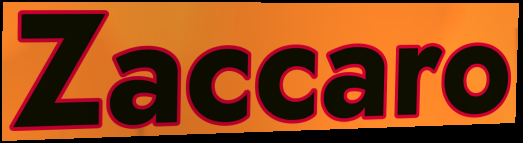
Zaccaro